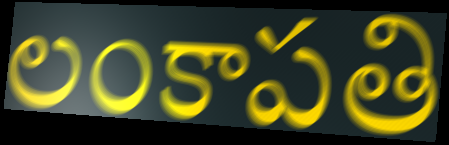
లంకాపతి